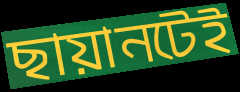
ছায়ানটেই